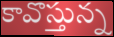
కావొస్తున్న